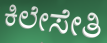
ಕಿಲೇಸೇತಿ